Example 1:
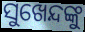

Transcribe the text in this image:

ସୁଖେନ୍ଦଙ୍କୁ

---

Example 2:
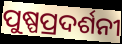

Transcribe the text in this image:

ପୁଷ୍ପପ୍ରଦର୍ଶନୀ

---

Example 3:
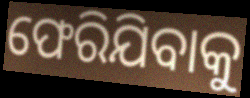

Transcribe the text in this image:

ଫେରିଯିବାକୁ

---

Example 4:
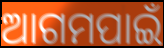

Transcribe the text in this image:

ଆଗମପାଇଁ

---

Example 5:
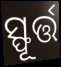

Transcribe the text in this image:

ସ୍ଫୂର୍ତ୍ତ